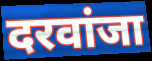
दरवांजा